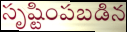
సృష్టింపబడిన